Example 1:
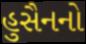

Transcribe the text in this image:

હુસૈનનો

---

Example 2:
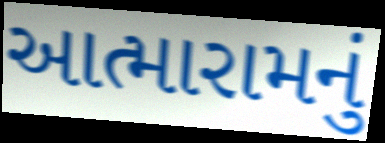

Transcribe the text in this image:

આત્મારામનું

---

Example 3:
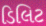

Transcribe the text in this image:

ડિલિટ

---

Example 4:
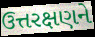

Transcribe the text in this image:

ઉત્તરક્ષણને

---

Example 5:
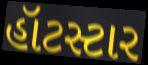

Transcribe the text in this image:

હૉટસ્ટાર